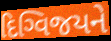
દિગ્વિજયને